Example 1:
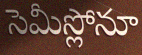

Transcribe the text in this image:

సెమీస్లోనూ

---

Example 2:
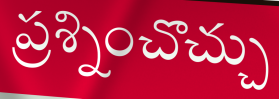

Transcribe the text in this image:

ప్రశ్నించొచ్చు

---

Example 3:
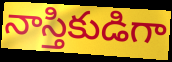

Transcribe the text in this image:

నాస్తికుడిగా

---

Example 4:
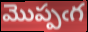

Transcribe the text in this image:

మొప్పఁగ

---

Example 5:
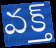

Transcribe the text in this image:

వక్త్